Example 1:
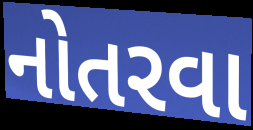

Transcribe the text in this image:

નોતરવા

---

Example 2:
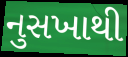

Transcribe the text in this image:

નુસખાથી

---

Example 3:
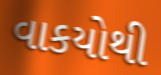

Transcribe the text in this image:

વાકયોથી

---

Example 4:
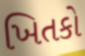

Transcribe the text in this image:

ખિતકો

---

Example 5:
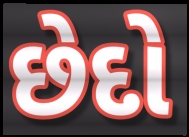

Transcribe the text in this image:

છેદો